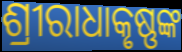
ଶ୍ରୀରାଧାକୃଷ୍ଣଙ୍କ